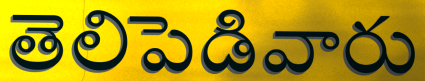
తెలిపెడివారు